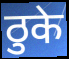
ठुके